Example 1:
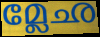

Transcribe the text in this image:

മ്ലേഛ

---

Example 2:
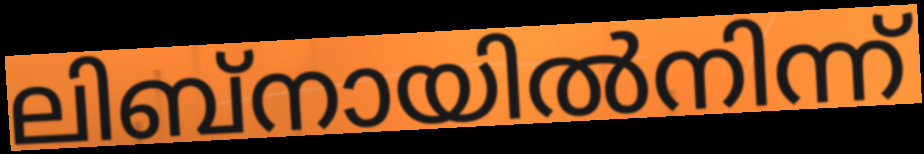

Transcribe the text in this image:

ലിബ്നായിൽനിന്ന്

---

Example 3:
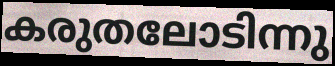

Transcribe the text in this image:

കരുതലോടിന്നു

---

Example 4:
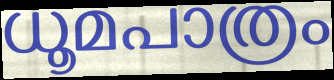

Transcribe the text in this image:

ധൂമപാത്രം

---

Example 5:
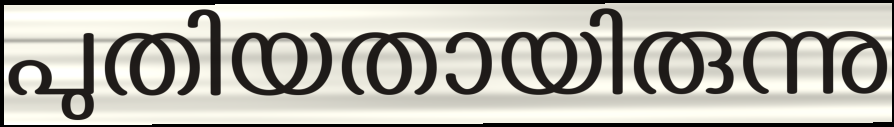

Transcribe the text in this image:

പുതിയതായിരുന്നു